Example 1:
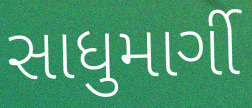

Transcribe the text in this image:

સાધુમાર્ગી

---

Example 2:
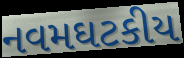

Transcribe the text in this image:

નવમઘટકીય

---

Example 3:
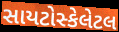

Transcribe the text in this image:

સાયટોસ્કેલેટલ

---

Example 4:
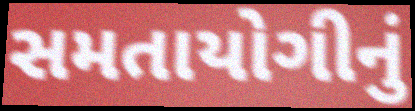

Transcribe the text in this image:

સમતાયોગીનું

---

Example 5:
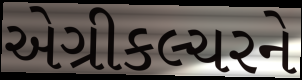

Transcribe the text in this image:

એગ્રીકલ્ચરને